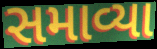
સમાવ્યા